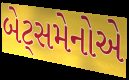
બેટ્સમેનોએ